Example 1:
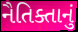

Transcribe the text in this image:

નૈતિક્તાનું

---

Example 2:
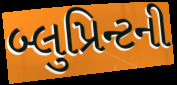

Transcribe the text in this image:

બ્લુપ્રિન્ટની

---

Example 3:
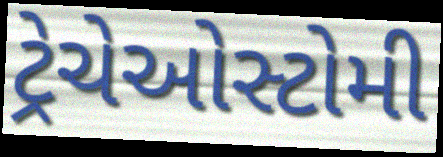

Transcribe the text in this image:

ટ્રેચેઓસ્ટોમી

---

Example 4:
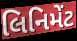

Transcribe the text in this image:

લિનિમેંટ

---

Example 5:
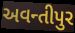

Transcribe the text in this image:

અવન્તીપુર